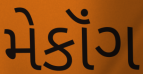
મેકૉંગ